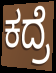
ಕದ್ರೆ